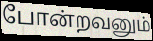
போன்றவனும்